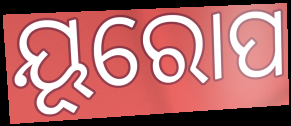
ୟୂରୋପ